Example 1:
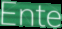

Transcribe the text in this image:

Ente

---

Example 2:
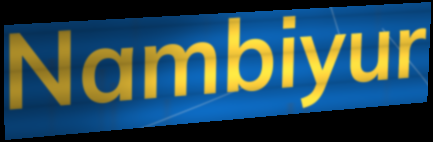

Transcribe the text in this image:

Nambiyur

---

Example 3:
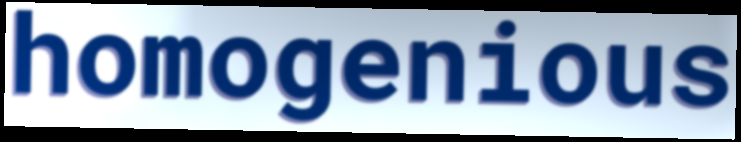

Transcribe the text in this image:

homogenious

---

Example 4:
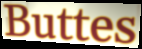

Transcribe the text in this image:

Buttes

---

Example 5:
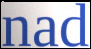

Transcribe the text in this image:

nad